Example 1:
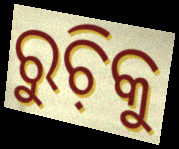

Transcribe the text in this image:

ରୁଚ଼ିକୁ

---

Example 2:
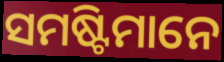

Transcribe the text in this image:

ସମଷ୍ଟିମାନେ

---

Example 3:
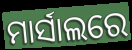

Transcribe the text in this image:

ମାର୍ସାଲରେ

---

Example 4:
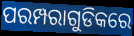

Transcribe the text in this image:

ପରମ୍ପରାଗୁଡିକରେ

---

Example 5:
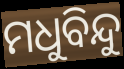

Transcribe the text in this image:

ମଧୁବିନ୍ଦୁ